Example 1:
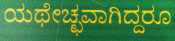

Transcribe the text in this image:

ಯಥೇಚ್ಛವಾಗಿದ್ದರೂ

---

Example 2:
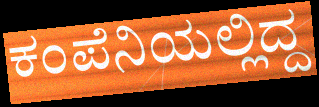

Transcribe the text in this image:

ಕಂಪೆನಿಯಲ್ಲಿದ್ದ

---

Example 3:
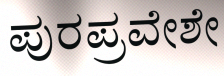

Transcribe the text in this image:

ಪುರಪ್ರವೇಶೇ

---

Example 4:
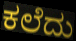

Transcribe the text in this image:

ಕಲೆದು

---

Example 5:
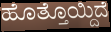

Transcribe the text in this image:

ಹೊತ್ತೊಯ್ದಿದೆ